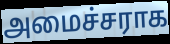
அமைச்சராக